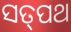
ସତ୍‌ପଥ